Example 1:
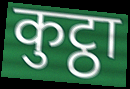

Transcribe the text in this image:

कुट्ठा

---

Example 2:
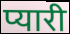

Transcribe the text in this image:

प्यारी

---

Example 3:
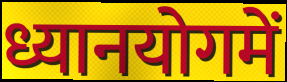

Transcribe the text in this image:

ध्यानयोगमें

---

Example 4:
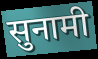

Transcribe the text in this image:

सुनामी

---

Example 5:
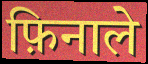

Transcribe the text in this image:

फ़िनाले